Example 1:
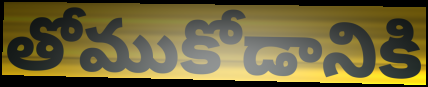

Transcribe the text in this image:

తోముకోడానికి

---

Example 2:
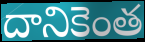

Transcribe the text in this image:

దానికెంత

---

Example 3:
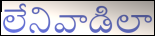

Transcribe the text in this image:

లేనివాడిలా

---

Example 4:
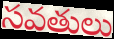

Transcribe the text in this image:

సవతులు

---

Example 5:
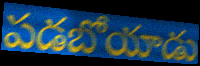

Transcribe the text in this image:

పడబోయాడు